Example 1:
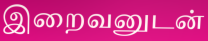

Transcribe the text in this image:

இறைவனுடன்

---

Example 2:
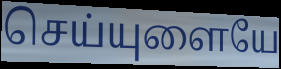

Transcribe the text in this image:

செய்யுளையே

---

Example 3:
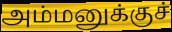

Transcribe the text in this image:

அம்மனுக்குச்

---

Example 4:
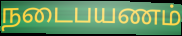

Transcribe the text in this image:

நடைபயணம்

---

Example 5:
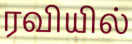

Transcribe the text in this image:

ரவியில்